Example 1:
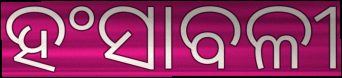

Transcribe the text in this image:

ହଂସାବଳୀ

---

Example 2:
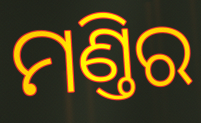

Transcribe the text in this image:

ମଣ୍ତିର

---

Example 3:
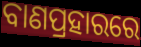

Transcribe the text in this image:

ବାଣପ୍ରହାରରେ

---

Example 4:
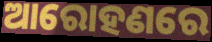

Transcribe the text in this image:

ଆରୋହଣରେ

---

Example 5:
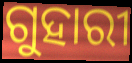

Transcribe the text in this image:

ଗୁହାରୀ